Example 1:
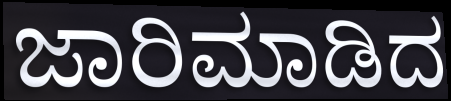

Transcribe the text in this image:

ಜಾರಿಮಾಡಿದ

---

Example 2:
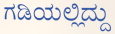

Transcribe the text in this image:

ಗಡಿಯಲ್ಲಿದ್ದು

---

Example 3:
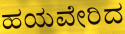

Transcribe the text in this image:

ಹಯವೇರಿದ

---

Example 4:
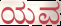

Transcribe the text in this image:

ಯವ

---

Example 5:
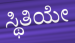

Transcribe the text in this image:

ಸ್ಥಿತಿಯೇ